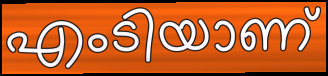
എംടിയാണ്